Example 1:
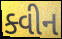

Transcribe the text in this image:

ક્વીન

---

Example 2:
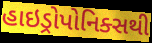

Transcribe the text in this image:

હાઇડ્રોપોનિક્સથી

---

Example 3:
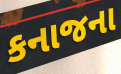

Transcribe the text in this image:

કનાજના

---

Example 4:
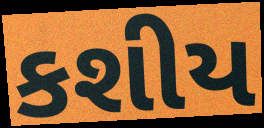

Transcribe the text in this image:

કશીય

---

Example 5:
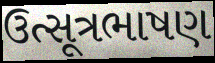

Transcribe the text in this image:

ઉત્સૂત્રભાષણ